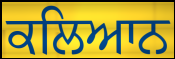
ਕਲਿਆਨ